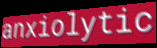
anxiolytic